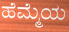
ಹೆಮ್ಮೆಯ